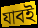
যাবই